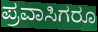
ಪ್ರವಾಸಿಗರೂ